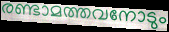
രണ്ടാമത്തവനോടും